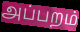
அப்பறம்